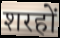
शरहों